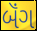
બૅંગ